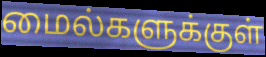
மைல்களுக்குள்